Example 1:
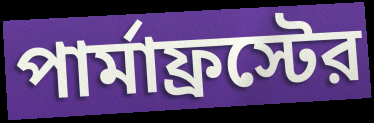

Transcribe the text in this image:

পার্মাফ্রস্টের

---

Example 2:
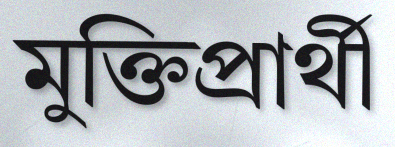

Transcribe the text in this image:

মুক্তিপ্রার্থী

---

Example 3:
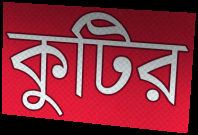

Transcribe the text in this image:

কুটির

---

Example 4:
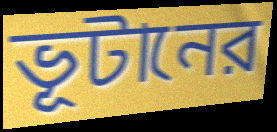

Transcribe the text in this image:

ভূটানের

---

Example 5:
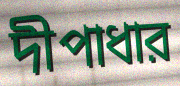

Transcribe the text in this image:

দীপাধার